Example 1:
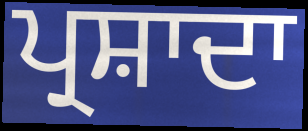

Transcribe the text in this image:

ਪ੍ਰਸ਼ਾਦਾ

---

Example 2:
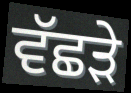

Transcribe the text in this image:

ਵੱਛੜੇ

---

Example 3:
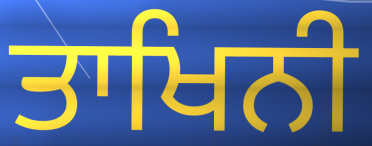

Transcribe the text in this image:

ਤਾਖਿਨੀ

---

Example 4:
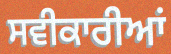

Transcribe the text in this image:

ਸਵੀਕਾਰੀਆਂ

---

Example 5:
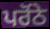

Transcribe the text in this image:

ਪਰੋਂਠੇ